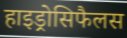
हाइड्रोसिफैलस